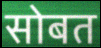
सोबत